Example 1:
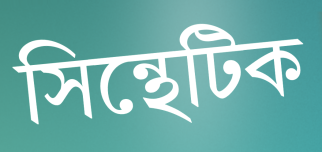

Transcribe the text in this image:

সিন্থেটিক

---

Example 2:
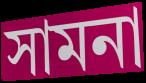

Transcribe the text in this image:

সামনা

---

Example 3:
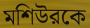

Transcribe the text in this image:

মশিউরকে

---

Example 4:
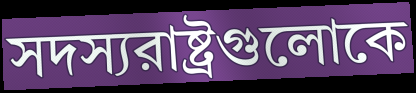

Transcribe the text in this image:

সদস্যরাষ্ট্রগুলোকে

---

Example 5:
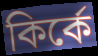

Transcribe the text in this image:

কির্কে